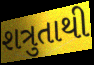
શત્રુતાથી